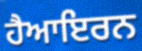
ਹੈਆਇਰਨ